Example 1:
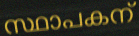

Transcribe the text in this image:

സ്ഥാപകന്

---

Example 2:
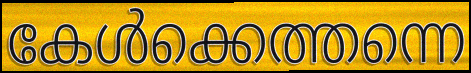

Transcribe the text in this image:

കേൾക്കെത്തന്നെ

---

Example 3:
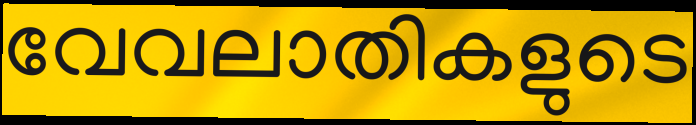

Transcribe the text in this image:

വേവലാതികളുടെ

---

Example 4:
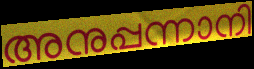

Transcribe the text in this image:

അനുപ്പന്നാനി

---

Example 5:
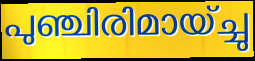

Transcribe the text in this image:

പുഞ്ചിരിമായ്ച്ചു